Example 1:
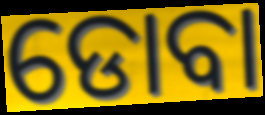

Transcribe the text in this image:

ଡୋବା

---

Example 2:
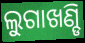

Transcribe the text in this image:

ଲୁଗାଖଣ୍ଡି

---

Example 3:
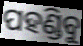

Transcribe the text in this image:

ପହଣ୍ଡିବୁ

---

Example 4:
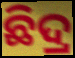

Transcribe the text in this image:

ଛିଦ୍ର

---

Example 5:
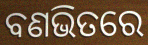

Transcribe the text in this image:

ବଣଭିତରେ